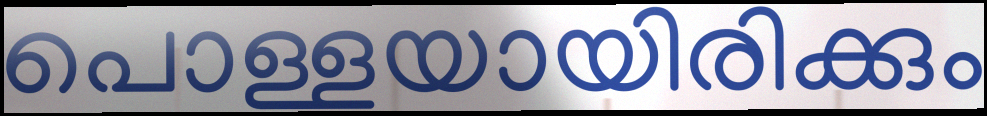
പൊള്ളയായിരിക്കും